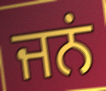
ਜਨਂ